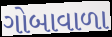
ગોબાવાળા